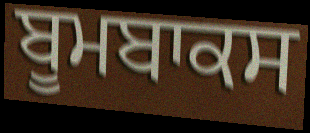
ਬੂਮਬਾਕਸ